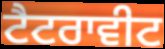
ਟੈਟਰਾਵੀਟ